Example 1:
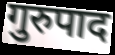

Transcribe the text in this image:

गुरुपाद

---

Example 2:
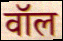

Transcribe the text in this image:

वॉल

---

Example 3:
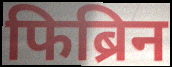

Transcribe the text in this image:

फिब्रिन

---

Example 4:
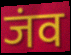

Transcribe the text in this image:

जंव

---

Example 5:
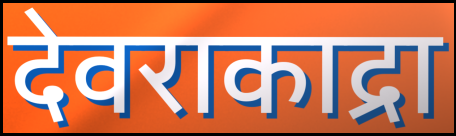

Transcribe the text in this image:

देवराकाद्रा